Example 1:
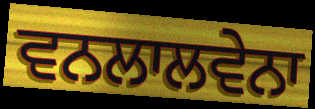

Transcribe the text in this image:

ਵਨਲਾਲਵੇਨਾ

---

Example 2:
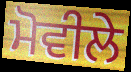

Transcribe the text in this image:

ਮੋਵੀਲੇ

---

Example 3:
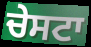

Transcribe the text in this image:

ਚੇਸਟਾ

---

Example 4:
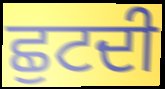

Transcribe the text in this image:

ਛੁਟਦੀ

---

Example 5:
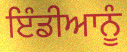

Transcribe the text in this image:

ਇੰਡੀਆਨੂੰ